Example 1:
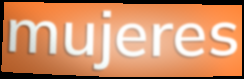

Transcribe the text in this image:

mujeres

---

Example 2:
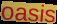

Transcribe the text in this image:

oasis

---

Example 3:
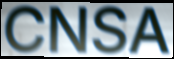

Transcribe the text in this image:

CNSA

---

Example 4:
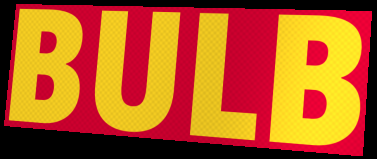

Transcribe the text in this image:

BULB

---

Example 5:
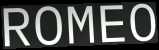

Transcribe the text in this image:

ROMEO